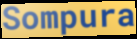
Sompura